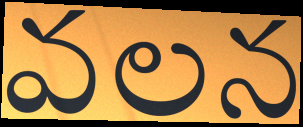
వలన